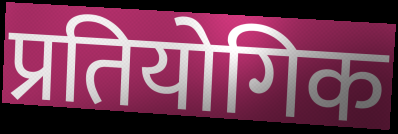
प्रतियोगिक